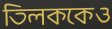
তিলককেও